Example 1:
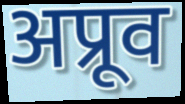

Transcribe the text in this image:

अप्रूव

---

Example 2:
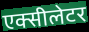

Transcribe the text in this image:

एक्सीलेटर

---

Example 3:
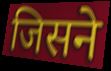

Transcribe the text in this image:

जिसने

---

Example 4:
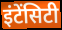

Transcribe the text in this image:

इंटेंसिटी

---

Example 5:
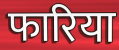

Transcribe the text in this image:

फारिया